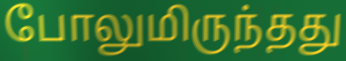
போலுமிருந்தது